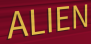
ALIEN